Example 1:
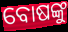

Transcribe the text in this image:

ବୋଷଙ୍କୁ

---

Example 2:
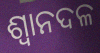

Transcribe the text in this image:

ଶ୍ୱାନଦଳ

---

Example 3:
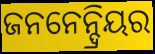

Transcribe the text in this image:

ଜନନେନ୍ଦ୍ରିୟର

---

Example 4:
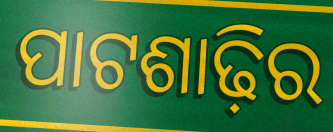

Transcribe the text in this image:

ପାଟଶାଢ଼ିର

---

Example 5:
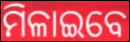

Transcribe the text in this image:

ମିଳାଇବେ